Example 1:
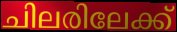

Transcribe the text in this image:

ചിലരിലേക്ക്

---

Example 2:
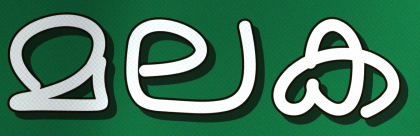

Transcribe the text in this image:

മലക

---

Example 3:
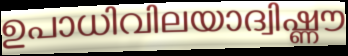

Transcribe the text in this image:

ഉപാധിവിലയാദ്വിഷ്ണൗ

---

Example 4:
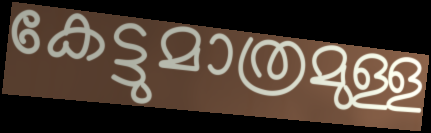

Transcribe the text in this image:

കേട്ടുമാത്രമുള്ള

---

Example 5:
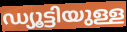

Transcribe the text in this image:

ഡ്യൂട്ടിയുള്ള